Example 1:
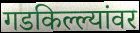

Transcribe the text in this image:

गडकिल्ल्यांवर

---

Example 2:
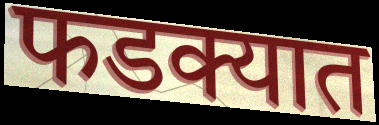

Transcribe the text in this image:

फडक्‍यात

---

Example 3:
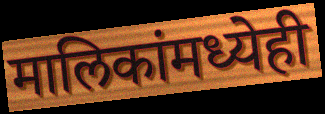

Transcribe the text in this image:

मालिकांमध्येही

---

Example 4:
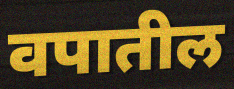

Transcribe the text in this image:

वपातील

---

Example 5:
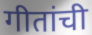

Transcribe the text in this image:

गीतांची